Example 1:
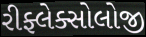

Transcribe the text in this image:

રીફ્લેક્સોલોજી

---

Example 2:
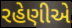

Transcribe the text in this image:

રહેણીએ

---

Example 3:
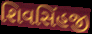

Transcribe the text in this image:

શિવસિંહજી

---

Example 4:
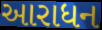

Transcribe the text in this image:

આરાધન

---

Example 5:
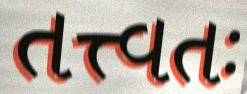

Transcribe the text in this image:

તત્ત્વતઃ